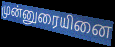
முன்னுரையினை